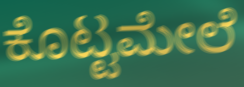
ಕೊಟ್ಟಮೇಲೆ